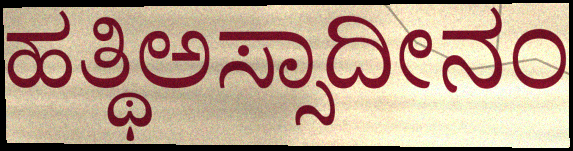
ಹತ್ಥಿಅಸ್ಸಾದೀನಂ